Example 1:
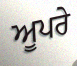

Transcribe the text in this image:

ਅੂਪਰੇ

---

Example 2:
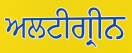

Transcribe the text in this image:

ਅਲਟੀਗ੍ਰੀਨ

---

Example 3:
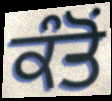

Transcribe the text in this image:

ਕੰਤੋਂ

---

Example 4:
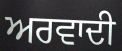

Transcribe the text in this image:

ਅਰਵਾਦੀ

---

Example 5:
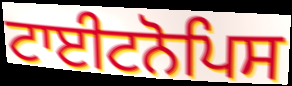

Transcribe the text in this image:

ਟਾਈਟਨੋਪਿਸ